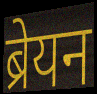
ब्रेयन